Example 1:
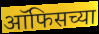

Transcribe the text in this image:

ऑफिसच्या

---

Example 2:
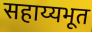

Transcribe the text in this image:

सहाय्यभूत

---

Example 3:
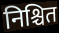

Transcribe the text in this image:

निश्चित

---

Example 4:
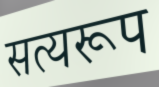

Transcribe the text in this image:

सत्यरूप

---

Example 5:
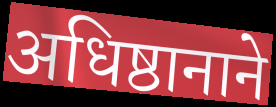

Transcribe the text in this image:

अधिष्ठानाने